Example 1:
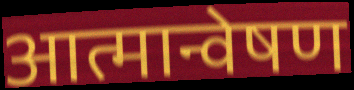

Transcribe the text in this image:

आत्मान्वेषण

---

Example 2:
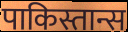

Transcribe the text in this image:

पाकिस्तान्स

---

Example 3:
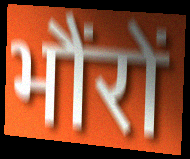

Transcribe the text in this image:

भौंरों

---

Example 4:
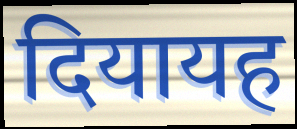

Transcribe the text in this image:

दियायह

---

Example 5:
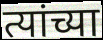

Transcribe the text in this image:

त्यांच्या